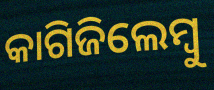
କାଗିଜିଲେମ୍ବୁ